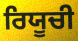
ਰਿਯੂਚੀ